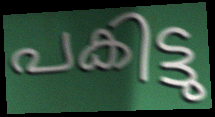
പകിട്ടു